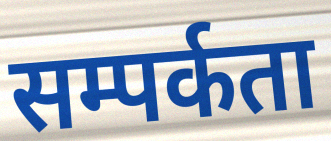
सम्पर्कता